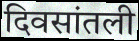
दिवसांतली